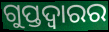
ଗୁପ୍ତଦ୍ୱାରର